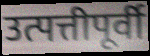
उत्पत्तीपूर्वी